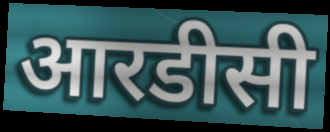
आरडीसी